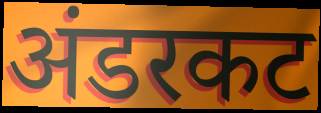
अंडरकट